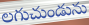
లగుచుండును